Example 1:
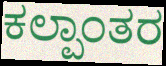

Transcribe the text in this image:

ಕಲ್ಪಾಂತರ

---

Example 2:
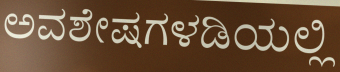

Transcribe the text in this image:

ಅವಶೇಷಗಳಡಿಯಲ್ಲಿ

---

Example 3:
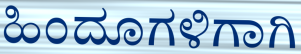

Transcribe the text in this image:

ಹಿಂದೂಗಳಿಗಾಗಿ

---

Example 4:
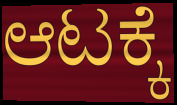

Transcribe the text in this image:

ಆಟಕ್ಕೆ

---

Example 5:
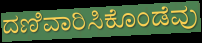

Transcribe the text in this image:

ದಣಿವಾರಿಸಿಕೊಂಡೆವು